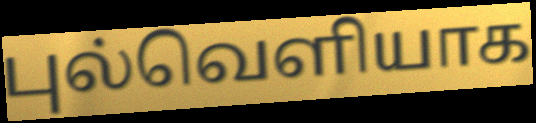
புல்வெளியாக